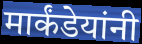
मार्कंडेयांनी